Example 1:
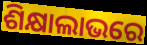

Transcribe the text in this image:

ଶିକ୍ଷାଲାଭରେ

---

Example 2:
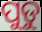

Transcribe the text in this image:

ପୁଡୁ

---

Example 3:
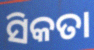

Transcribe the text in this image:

ସିକତା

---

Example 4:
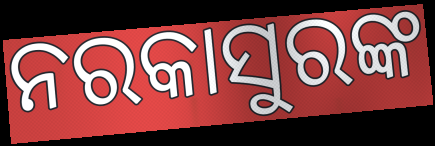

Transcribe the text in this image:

ନରକାସୁରଙ୍କ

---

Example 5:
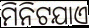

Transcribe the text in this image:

ମିନିଟଯାଏ